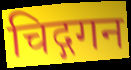
चिद्गगन